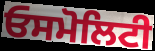
ਓਸਮੋਲਿਟੀ